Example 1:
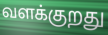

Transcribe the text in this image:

வளக்குறது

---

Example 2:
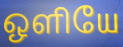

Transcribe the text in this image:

ஒளியே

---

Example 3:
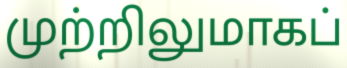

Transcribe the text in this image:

முற்றிலுமாகப்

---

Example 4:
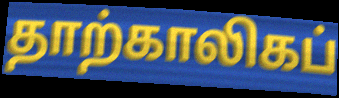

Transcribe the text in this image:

தாற்காலிகப்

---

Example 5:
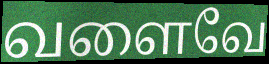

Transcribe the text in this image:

வளைவே